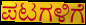
ಪಟಗಳಿಗೆ